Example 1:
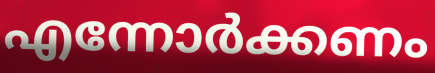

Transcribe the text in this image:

എന്നോർക്കണം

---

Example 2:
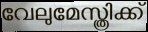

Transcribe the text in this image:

വേലുമേസ്ത്രിക്ക്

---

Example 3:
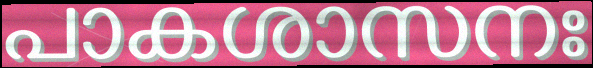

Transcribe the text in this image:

പാകശാസനഃ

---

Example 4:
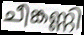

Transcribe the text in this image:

ചീങ്കണ്ണി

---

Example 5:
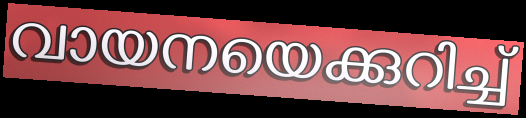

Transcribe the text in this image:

വായനയെക്കുറിച്ച്